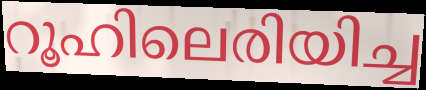
റൂഹിലെരിയിച്ച